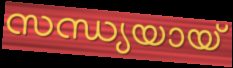
സന്ധ്യയായ്